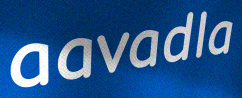
aavadla